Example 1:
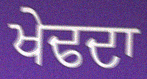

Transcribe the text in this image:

ਖੇਢਦਾ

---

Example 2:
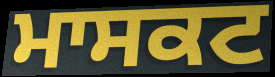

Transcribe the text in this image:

ਮਾਸਕਟ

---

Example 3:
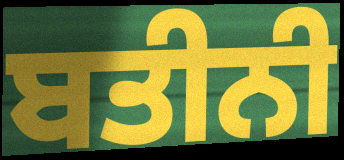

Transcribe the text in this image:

ਬਤੀਨੀ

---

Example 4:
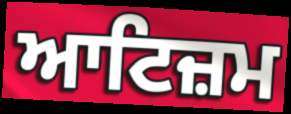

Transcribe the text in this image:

ਆਟਿਜ਼ਮ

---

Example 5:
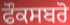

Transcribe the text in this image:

ਫੌਕਸਬਰੋ